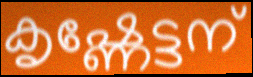
കൃഷ്ണേട്ടന്